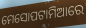
ମେସୋପଟାମିଆରେ